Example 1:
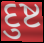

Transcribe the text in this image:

દુષ્ટ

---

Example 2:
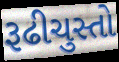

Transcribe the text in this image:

રૂઢીચુસ્તો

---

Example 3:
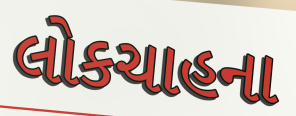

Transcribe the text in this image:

લોકચાહના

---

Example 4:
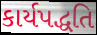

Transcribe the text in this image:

કાર્યપદ્ધતિ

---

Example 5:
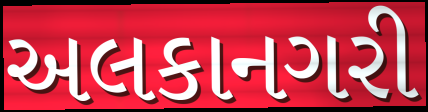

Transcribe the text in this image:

અલકાનગરી